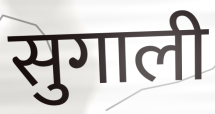
सुगाली